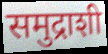
समुद्राशी